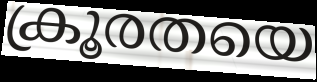
ക്രൂരതയെ